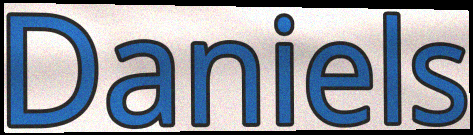
Daniels